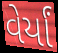
વેર્યાં